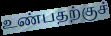
உண்பதற்குச்